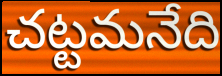
చట్టమనేది